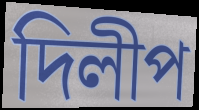
দিলীপ